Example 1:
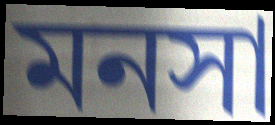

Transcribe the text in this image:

মনসা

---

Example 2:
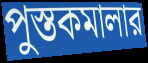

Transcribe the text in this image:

পুস্তকমালার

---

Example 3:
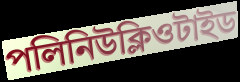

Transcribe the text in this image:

পলিনিউক্লিওটাইড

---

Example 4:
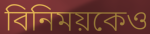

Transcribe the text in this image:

বিনিময়কেও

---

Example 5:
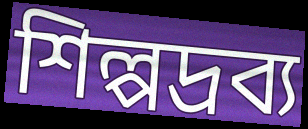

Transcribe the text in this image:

শিল্পদ্রব্য